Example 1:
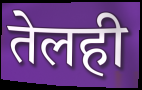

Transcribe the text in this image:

तेलही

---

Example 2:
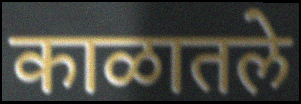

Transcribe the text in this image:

काळातले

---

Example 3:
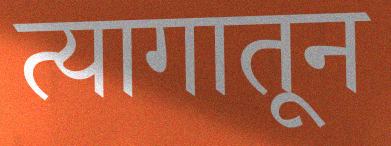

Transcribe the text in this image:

त्यागातून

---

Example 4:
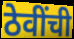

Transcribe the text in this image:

ठेवींची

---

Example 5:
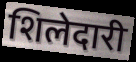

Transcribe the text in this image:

शिलेदारी